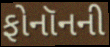
ફોનૉનની